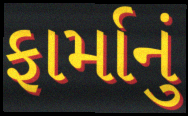
ફાર્માનું